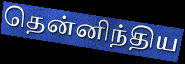
தென்னிந்திய